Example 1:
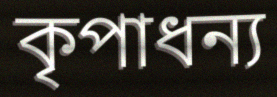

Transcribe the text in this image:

কৃপাধন্য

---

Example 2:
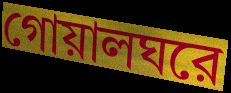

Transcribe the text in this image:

গোয়ালঘরে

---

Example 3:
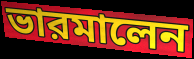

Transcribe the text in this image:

ভারমালেন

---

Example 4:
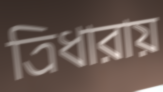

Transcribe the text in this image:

ত্রিধারায়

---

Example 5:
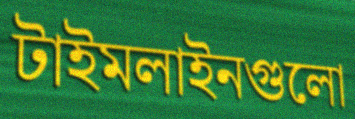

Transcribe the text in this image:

টাইমলাইনগুলো